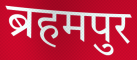
ब्रहमपुर